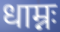
धाम्नः